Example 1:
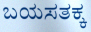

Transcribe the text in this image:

ಬಯಸತಕ್ಕ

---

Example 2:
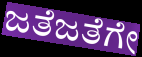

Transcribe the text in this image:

ಜತೆಜತೆಗೇ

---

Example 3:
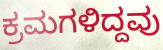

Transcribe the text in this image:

ಕ್ರಮಗಳಿದ್ದವು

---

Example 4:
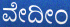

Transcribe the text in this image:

ವೇದೀಂ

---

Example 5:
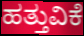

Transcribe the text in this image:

ಹತ್ತುವಿಕೆ